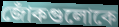
জোঁকগুলোকে